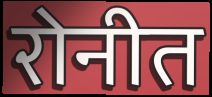
रोनीत